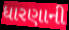
ધારણાની